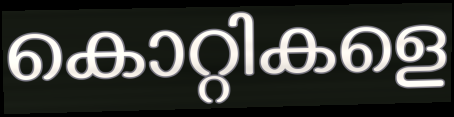
കൊറ്റികളെ